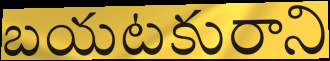
బయటకురాని